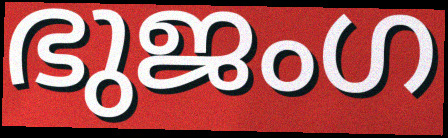
ഭുജംഗ